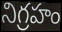
నిగ్రహం